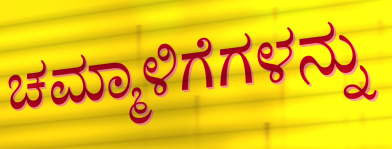
ಚಮ್ಮಾಳಿಗೆಗಳನ್ನು